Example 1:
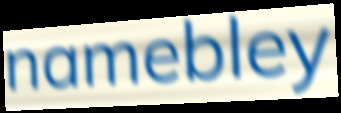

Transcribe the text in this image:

namebley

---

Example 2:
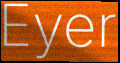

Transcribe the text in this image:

Eyer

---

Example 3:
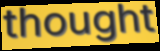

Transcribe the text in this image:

thought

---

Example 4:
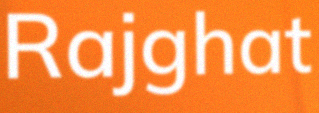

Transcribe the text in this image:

Rajghat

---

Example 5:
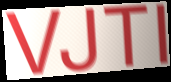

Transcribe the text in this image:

VJTI